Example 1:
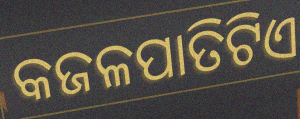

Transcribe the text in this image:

କଜଳପାତିଟିଏ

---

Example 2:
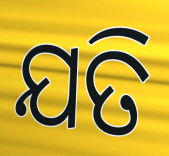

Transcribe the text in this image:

ଯତି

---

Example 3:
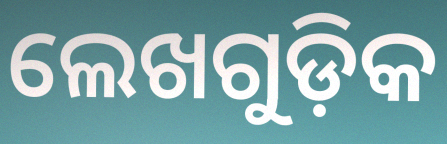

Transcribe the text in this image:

ଲେଖଗୁଡ଼ିକ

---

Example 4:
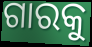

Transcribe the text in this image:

ଗାରକୁ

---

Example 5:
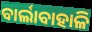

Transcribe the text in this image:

ବାର୍ଲାବାହାଳି